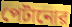
পেটানোর